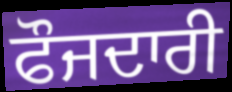
ਫੌਜਦਾਰੀ